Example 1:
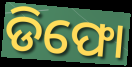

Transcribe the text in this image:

ଡିଫୋ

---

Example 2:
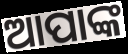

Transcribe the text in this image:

ଆପାଙ୍କ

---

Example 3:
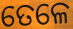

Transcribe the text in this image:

ତେଳେ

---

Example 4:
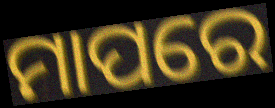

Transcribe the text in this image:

ମାପରେ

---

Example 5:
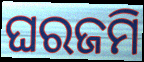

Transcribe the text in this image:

ଘରଜମି